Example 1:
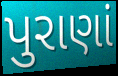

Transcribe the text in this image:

પુરાણાં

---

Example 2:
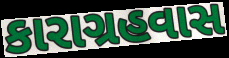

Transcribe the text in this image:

કારાગ્રહવાસ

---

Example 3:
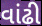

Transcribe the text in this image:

વાંઢી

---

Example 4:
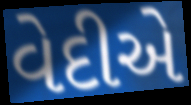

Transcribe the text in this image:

વેદીએ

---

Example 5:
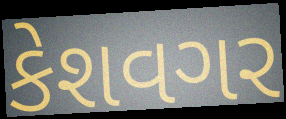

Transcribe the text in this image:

કેશવગર